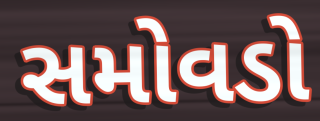
સમોવડો